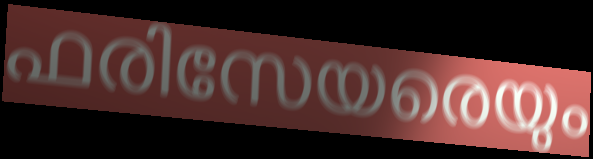
ഫരിസേയരെയും